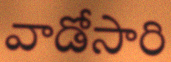
వాడోసారి